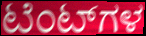
ಟೆಂಟ್‌ಗಳ